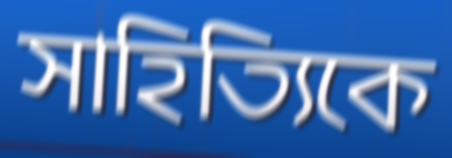
সাহিত্যিকে